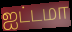
ஐட்டமா